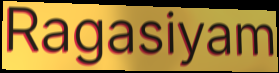
Ragasiyam